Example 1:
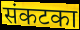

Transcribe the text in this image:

संकटका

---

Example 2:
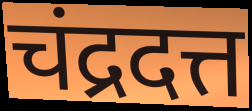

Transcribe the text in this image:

चंद्रदत्त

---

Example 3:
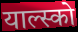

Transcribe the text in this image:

याल्स्को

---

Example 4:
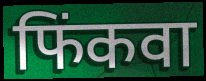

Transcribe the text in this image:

फिंकवा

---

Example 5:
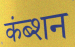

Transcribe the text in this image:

कंब्शन